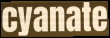
cyanate